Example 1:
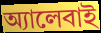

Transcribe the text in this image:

অ্যালেবাই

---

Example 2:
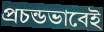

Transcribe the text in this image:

প্রচন্ডভাবেই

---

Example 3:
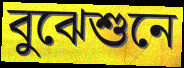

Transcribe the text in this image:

বুঝেশুনে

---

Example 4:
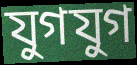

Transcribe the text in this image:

যুগযুগ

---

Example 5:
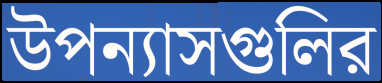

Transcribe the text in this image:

উপন্যাসগুলির